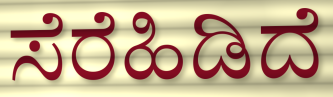
ಸೆರೆಹಿಡಿದೆ